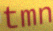
tmn